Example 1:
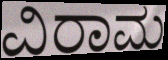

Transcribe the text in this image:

ವಿರಾಮ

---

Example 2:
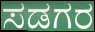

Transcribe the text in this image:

ಸಡಗರ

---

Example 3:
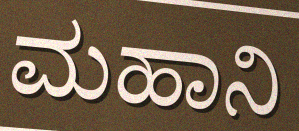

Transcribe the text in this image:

ಮಹಾನಿ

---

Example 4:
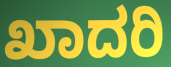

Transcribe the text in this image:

ಖಾದರಿ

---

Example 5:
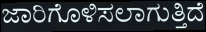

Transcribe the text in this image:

ಜಾರಿಗೊಳಿಸಲಾಗುತ್ತಿದೆ